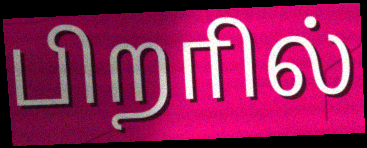
பிறரில்